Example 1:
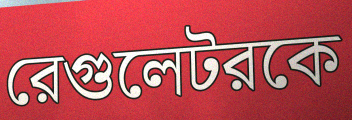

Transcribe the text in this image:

রেগুলেটরকে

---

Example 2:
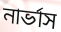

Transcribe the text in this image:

নার্ভাস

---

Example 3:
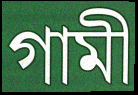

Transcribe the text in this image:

গামী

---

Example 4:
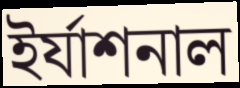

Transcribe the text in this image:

ইর্যাশনাল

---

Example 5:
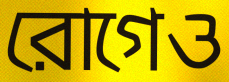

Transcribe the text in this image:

রোগেও